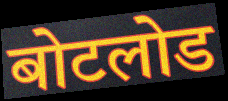
बोटलोड